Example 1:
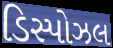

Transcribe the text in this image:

ડિસ્પોઝલ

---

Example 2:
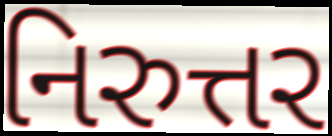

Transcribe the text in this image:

નિરુત્તર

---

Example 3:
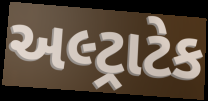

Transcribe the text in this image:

અલ્ટ્રાટેક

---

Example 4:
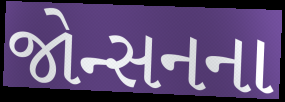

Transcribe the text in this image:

જોન્સનના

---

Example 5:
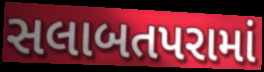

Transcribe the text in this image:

સલાબતપરામાં